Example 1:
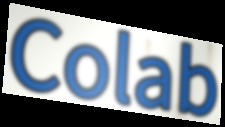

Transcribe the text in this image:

Colab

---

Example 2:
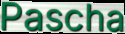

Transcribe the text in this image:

Pascha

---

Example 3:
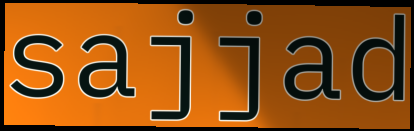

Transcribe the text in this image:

sajjad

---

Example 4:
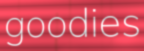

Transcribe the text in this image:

goodies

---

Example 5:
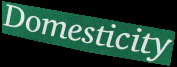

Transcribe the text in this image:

Domesticity